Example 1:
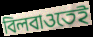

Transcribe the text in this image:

বিলবাওতেই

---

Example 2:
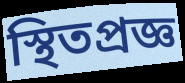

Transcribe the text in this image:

স্থিতপ্রজ্ঞ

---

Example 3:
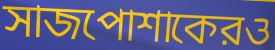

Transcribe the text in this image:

সাজপোশাকেরও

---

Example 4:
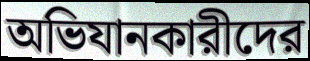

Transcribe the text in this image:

অভিযানকারীদের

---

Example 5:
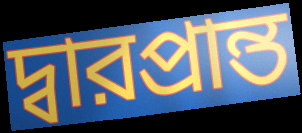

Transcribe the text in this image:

দ্বারপ্রান্ত